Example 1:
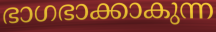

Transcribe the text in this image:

ഭാഗഭാക്കാകുന്ന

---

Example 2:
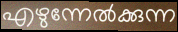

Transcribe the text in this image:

എഴുന്നേൽക്കുന്ന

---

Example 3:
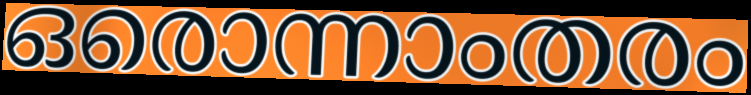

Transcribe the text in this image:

ഒരൊന്നാംതരം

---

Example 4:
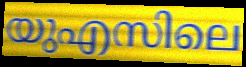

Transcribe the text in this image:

യുഎസിലെ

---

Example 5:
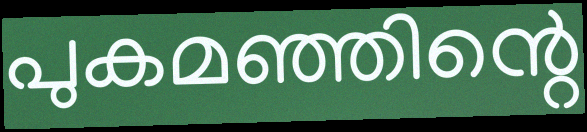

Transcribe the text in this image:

പുകമഞ്ഞിന്റെ